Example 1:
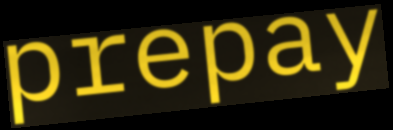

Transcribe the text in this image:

prepay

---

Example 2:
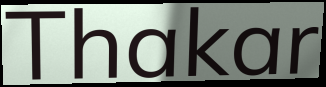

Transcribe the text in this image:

Thakar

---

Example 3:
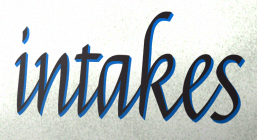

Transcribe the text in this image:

intakes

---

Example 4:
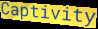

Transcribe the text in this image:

Captivity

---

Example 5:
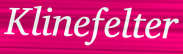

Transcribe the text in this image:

Klinefelter